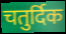
चतुर्दिक